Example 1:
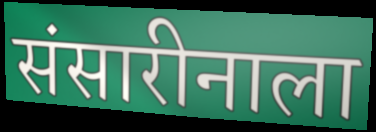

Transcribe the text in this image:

संसारीनाला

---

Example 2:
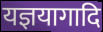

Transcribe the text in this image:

यज्ञयागादि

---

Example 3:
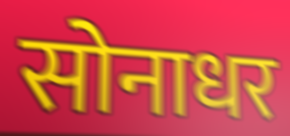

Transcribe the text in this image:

सोनाधर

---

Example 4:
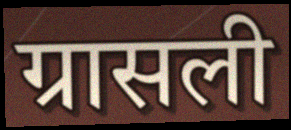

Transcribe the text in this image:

ग्रासली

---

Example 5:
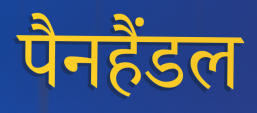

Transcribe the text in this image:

पैनहैंडल